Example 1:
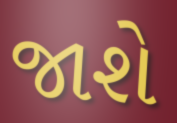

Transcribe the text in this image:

જાશે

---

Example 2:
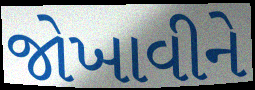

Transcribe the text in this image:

જોખાવીને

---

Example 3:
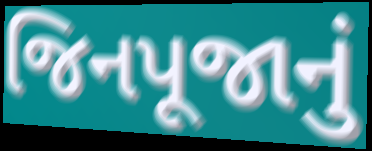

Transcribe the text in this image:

જિનપૂજાનું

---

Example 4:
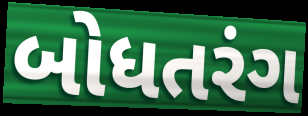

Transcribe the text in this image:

બોધતરંગ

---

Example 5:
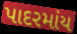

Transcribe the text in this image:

પાદરમાંય